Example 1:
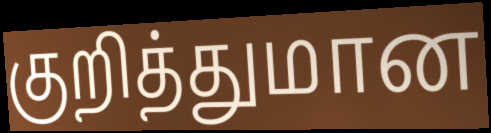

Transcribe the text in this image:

குறித்துமான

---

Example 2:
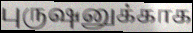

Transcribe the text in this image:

புருஷனுக்காக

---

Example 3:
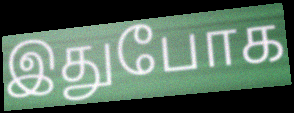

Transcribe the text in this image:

இதுபோக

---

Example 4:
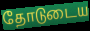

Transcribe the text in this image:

தோடுடைய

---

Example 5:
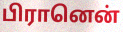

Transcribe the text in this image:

பிரானென்